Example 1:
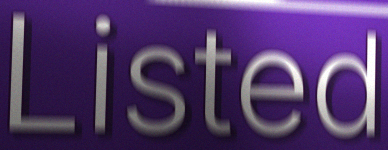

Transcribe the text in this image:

Listed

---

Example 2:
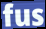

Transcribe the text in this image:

fus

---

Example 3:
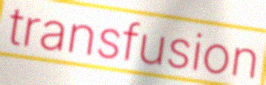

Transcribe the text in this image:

transfusion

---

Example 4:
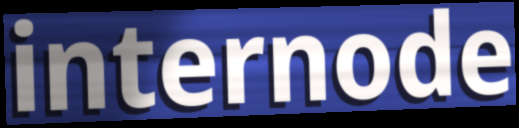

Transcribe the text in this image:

internode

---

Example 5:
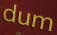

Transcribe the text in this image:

dum